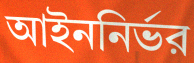
আইননির্ভর